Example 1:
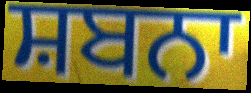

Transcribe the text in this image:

ਸ਼ਬਨਾ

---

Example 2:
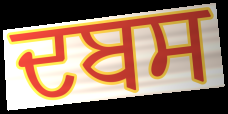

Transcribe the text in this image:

ਦਬਸ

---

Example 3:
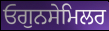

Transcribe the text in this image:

ਓਗੁਨਸੇਮਿਲਰ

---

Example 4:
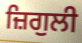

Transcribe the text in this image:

ਜ਼ਿਗੁਲੀ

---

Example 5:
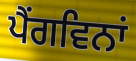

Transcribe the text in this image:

ਪੈਂਗਵਿਨਾਂ